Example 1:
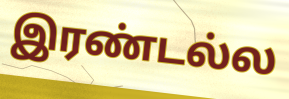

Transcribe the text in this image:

இரண்டல்ல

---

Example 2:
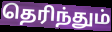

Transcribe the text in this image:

தெரிந்தும்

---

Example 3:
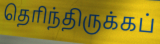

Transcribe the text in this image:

தெரிந்திருக்கப்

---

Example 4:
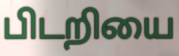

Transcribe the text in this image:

பிடறியை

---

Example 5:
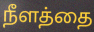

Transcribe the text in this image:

நீளத்தை